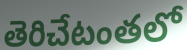
తెరిచేటంతలో